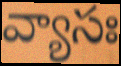
వ్యాసః